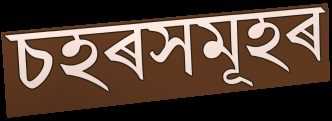
চহৰসমূহৰ